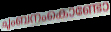
ചുംബനംകൊണ്ടോ